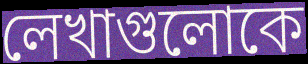
লেখাগুলোকে